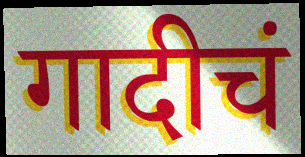
गादीचं